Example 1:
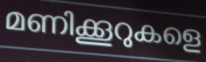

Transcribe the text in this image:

മണിക്കൂറുകളെ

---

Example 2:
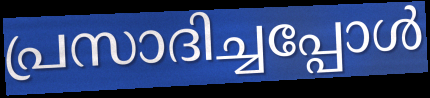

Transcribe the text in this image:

പ്രസാദിച്ചപ്പോൾ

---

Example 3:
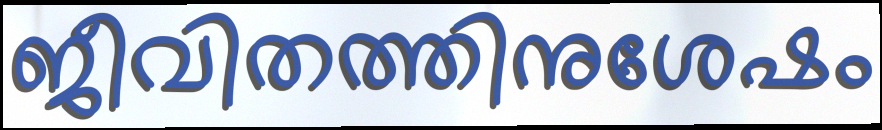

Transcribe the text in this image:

ജീവിതത്തിനുശേഷം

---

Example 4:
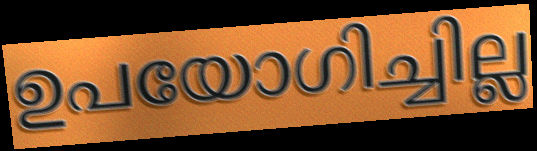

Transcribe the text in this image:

ഉപയോഗിച്ചില്ല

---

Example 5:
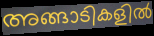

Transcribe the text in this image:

അങ്ങാടികളിൽ